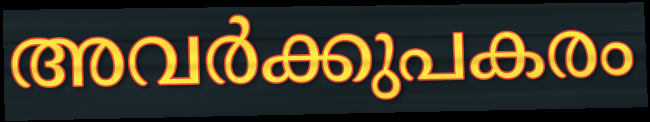
അവർക്കുപകരം